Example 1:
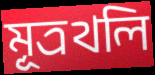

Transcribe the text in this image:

মূত্রথলি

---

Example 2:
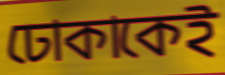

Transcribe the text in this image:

ঢোকাকেই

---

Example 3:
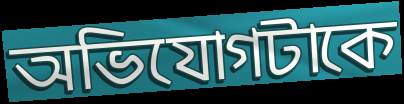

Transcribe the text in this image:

অভিযোগটাকে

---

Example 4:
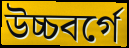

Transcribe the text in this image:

উচ্চবর্গে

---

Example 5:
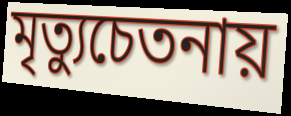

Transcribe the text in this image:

মৃত্যুচেতনায়